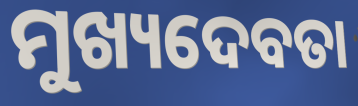
ମୁଖ୍ୟଦେବତା